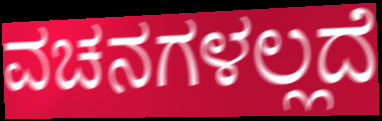
ವಚನಗಳಲ್ಲದೆ